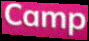
Camp